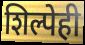
शिल्पेही